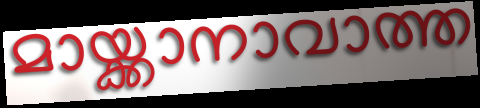
മായ്ക്കാനാവാത്ത